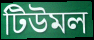
টিউমল